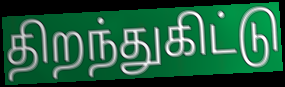
திறந்துகிட்டு